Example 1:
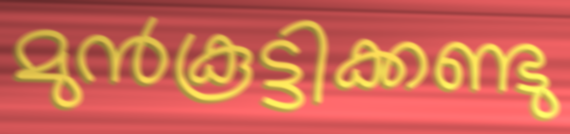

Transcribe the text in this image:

മുൻകൂട്ടിക്കണ്ടു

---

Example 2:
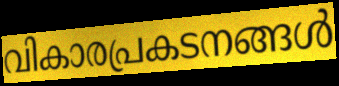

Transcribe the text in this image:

വികാരപ്രകടനങ്ങൾ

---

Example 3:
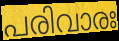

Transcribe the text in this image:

പരിവാരഃ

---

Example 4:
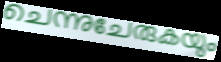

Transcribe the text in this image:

ചെന്നുചേരുകയും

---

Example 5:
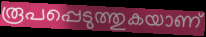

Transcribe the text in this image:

രൂപപ്പെടുത്തുകയാണ്